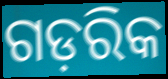
ଗଡ଼ରିକ